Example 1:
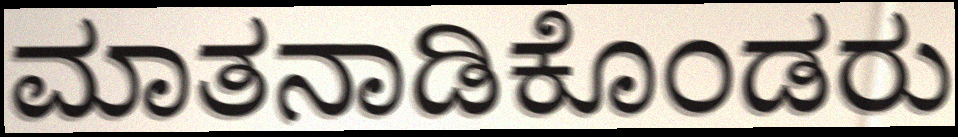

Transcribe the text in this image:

ಮಾತನಾಡಿಕೊಂಡರು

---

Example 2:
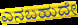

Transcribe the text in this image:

ಎನಬಹುದೇ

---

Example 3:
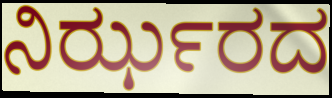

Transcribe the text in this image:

ನಿರ್ಝರದ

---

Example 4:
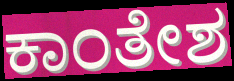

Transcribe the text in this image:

ಕಾಂತೇಶ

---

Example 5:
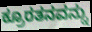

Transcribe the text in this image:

ಕ್ರೂರತನವನ್ನು